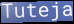
Tuteja